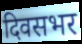
दिवसभर